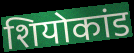
शियोकांड